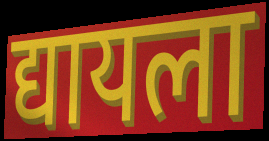
द्यायला